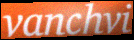
vanchvi